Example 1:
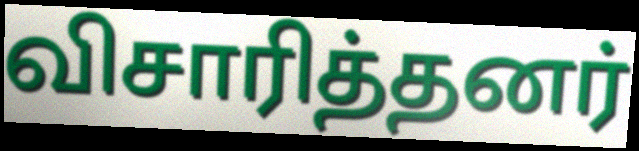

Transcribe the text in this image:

விசாரித்தனர்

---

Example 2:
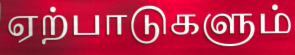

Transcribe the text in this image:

ஏற்பாடுகளும்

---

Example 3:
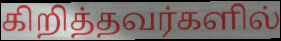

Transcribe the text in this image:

கிறித்தவர்களில்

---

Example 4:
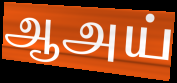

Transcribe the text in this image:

ஆஅய்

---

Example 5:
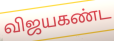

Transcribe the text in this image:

விஜயகண்ட